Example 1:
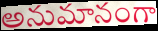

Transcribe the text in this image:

అనుమానంగా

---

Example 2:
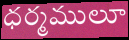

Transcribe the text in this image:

ధర్మములూ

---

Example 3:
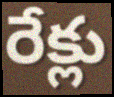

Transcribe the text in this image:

రేక్లు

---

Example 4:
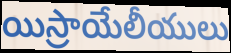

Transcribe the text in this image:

యిస్రాయేలీయులు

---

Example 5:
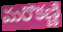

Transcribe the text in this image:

మరొకణ్ణి